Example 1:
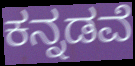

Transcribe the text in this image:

ಕನ್ನಡವೆ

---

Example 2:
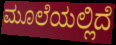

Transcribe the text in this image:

ಮೂಲೆಯಲ್ಲಿದೆ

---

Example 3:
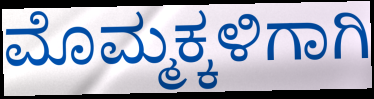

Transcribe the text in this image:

ಮೊಮ್ಮಕ್ಕಳಿಗಾಗಿ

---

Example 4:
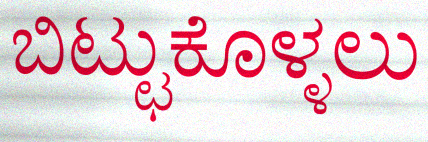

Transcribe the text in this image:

ಬಿಟ್ಟುಕೊಳ್ಳಲು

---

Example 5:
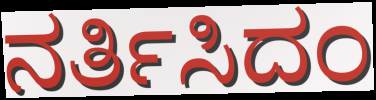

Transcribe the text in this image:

ನರ್ತಿಸಿದಂ